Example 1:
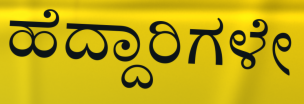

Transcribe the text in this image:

ಹೆದ್ದಾರಿಗಳೇ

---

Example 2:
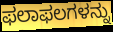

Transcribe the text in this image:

ಫಲಾಫಲಗಳನ್ನು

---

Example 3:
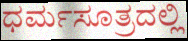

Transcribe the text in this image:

ಧರ್ಮಸೂತ್ರದಲ್ಲಿ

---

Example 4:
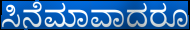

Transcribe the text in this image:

ಸಿನೆಮಾವಾದರೂ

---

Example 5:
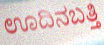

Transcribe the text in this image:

ಊದಿನಬತ್ತಿ